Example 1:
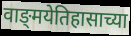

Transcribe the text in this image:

वाङ्‌मयेतिहासाच्या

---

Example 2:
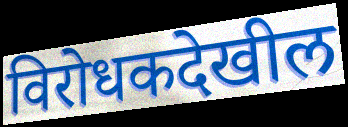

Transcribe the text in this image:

विरोधकदेखील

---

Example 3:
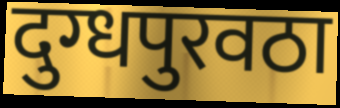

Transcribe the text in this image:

दुग्धपुरवठा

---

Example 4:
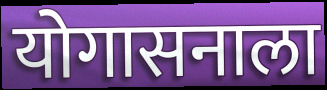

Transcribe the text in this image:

योगासनाला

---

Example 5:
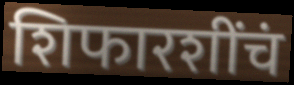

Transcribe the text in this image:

शिफारशींचं